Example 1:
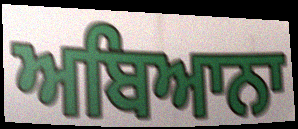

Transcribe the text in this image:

ਅਬਿਆਨਾ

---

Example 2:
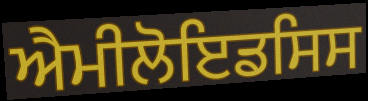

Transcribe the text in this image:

ਐਮੀਲੋਇਡਸਿਸ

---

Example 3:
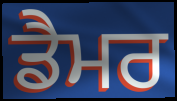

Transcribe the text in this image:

ਡੈਮਰ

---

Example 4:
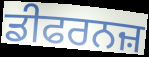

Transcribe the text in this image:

ਡੀਫਰਨਜ਼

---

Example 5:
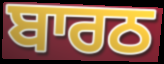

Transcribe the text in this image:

ਬਾਰਠ